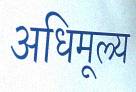
अधिमूल्य